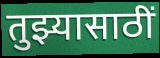
तुझ्यासाठीं